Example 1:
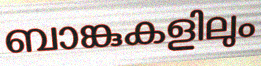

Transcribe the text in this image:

ബാങ്കുകളിലും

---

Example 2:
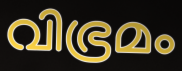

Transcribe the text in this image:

വിഭ്രമം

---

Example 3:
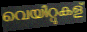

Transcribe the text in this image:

വെയിറ്റുകള്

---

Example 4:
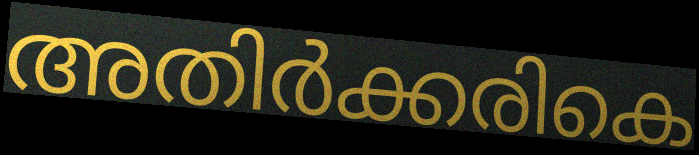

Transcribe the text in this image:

അതിർക്കരികെ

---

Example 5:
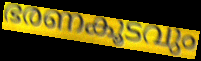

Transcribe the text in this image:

ഭരണകൂടവും